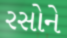
રસોને